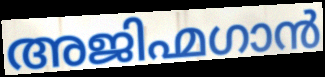
അജിഹ്മഗാൻ